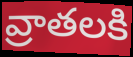
వ్రాతలకి